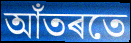
আঁতৰতে